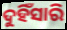
ଦୁହିଁସାରି